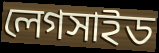
লেগসাইড